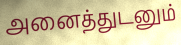
அனைத்துடனும்